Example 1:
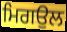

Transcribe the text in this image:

ਮਿਗਉਲ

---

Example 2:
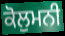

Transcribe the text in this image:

ਕੋਲੁਮਨੀ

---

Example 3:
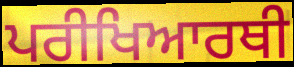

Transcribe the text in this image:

ਪਰੀਖਿਆਰਥੀ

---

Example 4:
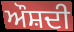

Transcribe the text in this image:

ਔਸ਼ਦੀ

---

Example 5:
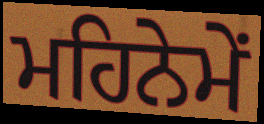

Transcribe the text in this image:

ਮਹਿਨੇਮੇਂ